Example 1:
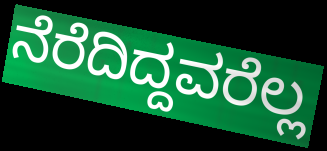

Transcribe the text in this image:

ನೆರೆದಿದ್ದವರೆಲ್ಲ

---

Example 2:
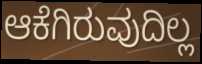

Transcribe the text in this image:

ಆಕೆಗಿರುವುದಿಲ್ಲ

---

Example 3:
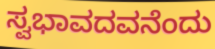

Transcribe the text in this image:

ಸ್ವಭಾವದವನೆಂದು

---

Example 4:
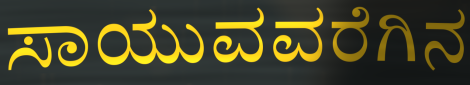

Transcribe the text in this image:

ಸಾಯುವವರೆಗಿನ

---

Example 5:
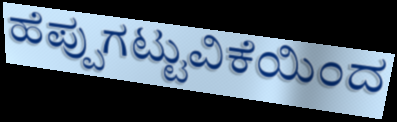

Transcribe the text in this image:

ಹೆಪ್ಪುಗಟ್ಟುವಿಕೆಯಿಂದ